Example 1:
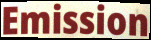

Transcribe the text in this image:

Emission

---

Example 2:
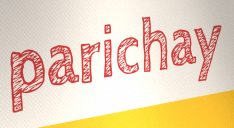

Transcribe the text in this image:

parichay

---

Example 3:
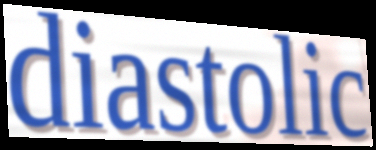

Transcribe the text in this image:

diastolic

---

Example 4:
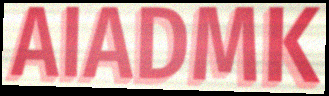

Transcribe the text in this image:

AIADMK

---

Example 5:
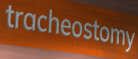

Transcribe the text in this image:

tracheostomy